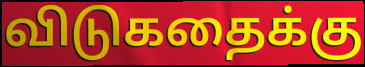
விடுகதைக்கு